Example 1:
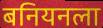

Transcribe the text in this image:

बनियनला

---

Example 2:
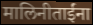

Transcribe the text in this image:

मालिनीताईंना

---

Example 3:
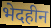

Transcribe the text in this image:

भेदहीन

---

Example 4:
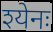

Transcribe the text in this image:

श्येनः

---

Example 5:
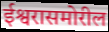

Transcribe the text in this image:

ईश्वरासमोरील